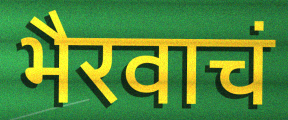
भैरवाचं